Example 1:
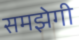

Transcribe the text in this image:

समझेगी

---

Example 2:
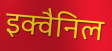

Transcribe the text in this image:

इक्वैनिल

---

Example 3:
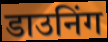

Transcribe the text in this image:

डाउनिंग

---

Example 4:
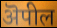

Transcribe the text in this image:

ऄपील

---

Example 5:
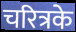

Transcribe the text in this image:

चरित्रके